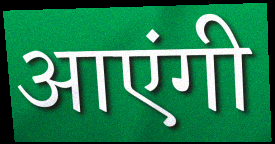
आएंगी